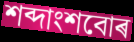
শব্দাংশবোৰ